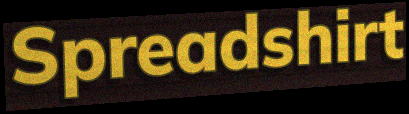
Spreadshirt